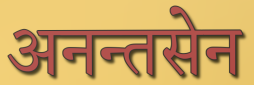
अनन्तसेन